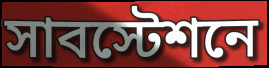
সাবস্টেশনে